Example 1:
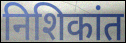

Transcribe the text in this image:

निशिकांत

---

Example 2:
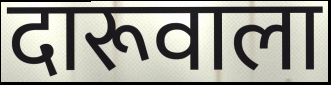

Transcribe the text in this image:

दारूवाला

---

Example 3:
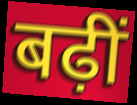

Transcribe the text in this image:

बढ़ीं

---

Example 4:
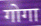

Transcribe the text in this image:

गोगा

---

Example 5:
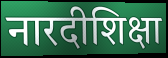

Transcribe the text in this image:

नारदीशिक्षा